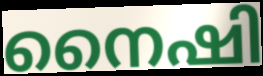
നൈഷി